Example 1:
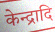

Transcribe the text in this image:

केन्द्रादि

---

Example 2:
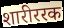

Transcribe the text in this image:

शारीररक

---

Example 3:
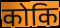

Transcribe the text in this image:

कोकि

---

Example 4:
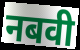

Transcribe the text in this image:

नबवी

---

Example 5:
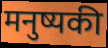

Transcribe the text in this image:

मनुष्यकी